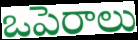
ఒపెరాలు